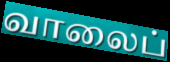
வாலைப்